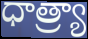
ధాత్ర్యా